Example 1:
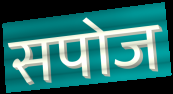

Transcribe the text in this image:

सपोज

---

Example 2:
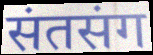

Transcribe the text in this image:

संतसंग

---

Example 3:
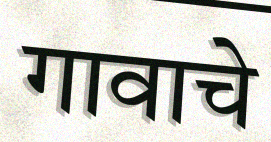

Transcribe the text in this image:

गावाचे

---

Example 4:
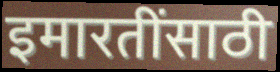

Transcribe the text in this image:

इमारतींसाठी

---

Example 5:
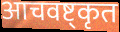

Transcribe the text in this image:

आचवष्ट्कृत